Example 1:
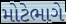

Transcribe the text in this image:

મોટેભાગે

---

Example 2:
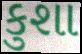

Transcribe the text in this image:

કુશા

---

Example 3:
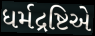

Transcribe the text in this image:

ધર્મદ્રષ્ટિએ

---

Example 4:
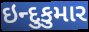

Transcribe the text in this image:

ઇન્દુકુમાર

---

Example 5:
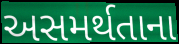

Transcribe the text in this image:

અસમર્થતાના